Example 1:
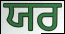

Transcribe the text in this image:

ਯਰ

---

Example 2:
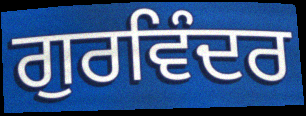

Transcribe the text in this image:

ਗੁਰਵਿੰਦਰ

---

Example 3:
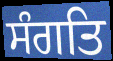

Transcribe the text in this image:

ਸੰਗਤਿ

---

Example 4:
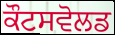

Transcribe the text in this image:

ਕੌਟਸਵੋਲਡ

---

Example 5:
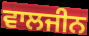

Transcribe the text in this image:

ਵਾਲਜੀਨ